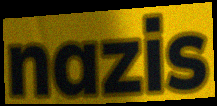
nazis